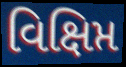
વિક્ષિપ્ત